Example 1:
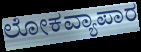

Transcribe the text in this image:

ಲೋಕವ್ಯಾಪಾರ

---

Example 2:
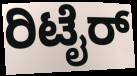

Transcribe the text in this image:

ರಿಟೈರ್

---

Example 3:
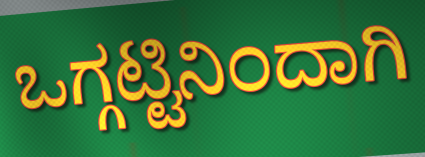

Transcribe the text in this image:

ಒಗ್ಗಟ್ಟಿನಿಂದಾಗಿ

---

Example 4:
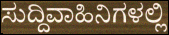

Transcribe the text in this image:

ಸುದ್ದಿವಾಹಿನಿಗಳಲ್ಲಿ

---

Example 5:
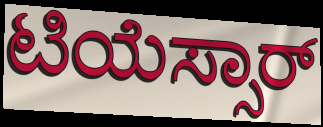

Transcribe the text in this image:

ಟಿಯೆಸ್ಸಾರ್